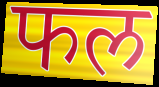
फल